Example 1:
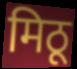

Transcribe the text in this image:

मिठू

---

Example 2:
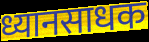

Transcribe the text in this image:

ध्यानसाधक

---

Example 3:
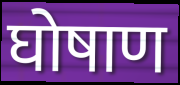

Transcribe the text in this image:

घोषाण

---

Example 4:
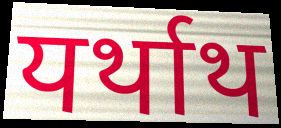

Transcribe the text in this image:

यर्थाथ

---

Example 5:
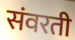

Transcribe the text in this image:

संवरती